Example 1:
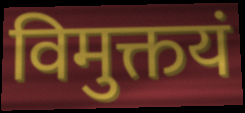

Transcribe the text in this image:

विमुक्तयं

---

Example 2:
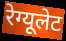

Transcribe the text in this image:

रेग्यूलेट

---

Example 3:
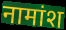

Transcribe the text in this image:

नामांश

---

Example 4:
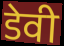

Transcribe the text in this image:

डेवी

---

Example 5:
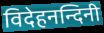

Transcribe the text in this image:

विदेहनन्दिनी